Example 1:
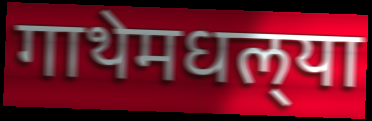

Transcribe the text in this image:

गाथेमधल्या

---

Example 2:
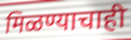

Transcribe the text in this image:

मिळण्याचाही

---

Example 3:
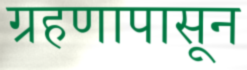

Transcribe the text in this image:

ग्रहणापासून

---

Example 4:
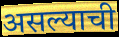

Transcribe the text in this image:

असल्याची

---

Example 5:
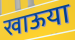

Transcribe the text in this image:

खाऊया